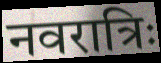
नवरात्रिः